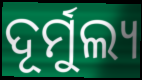
ଦୂର୍ମୁଲ୍ୟ